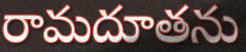
రామదూతను